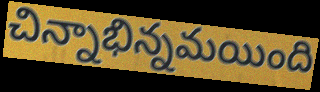
చిన్నాభిన్నమయింది